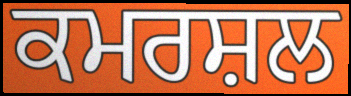
ਕਮਰਸ਼ਲ